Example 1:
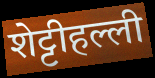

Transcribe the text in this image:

शेट्टीहल्ली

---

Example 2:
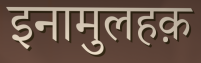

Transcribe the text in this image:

इनामुलहक़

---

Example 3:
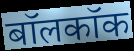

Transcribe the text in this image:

बॉलकॉक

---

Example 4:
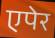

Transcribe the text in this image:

एपेर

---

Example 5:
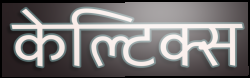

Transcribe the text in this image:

केल्टिक्स